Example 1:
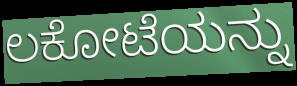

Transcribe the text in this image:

ಲಕೋಟೆಯನ್ನು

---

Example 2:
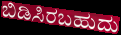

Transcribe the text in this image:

ಬಿಡಿಸಿರಬಹುದು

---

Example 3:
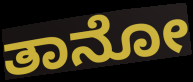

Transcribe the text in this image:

ತಾನೋ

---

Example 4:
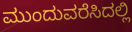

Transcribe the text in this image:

ಮುಂದುವರೆಸಿದಲ್ಲಿ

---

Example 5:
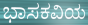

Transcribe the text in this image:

ಭಾಸಕವಿಯ